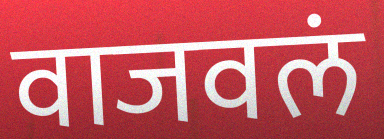
वाजवलं